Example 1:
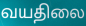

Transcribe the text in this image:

வயதிலை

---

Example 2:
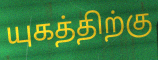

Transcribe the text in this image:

யுகத்திற்கு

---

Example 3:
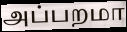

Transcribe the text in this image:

அப்பறமா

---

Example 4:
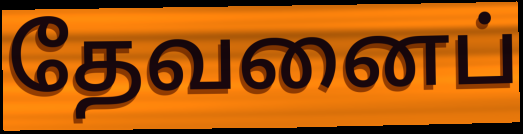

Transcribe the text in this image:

தேவனைப்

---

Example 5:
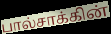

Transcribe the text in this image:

பால்சாக்கின்